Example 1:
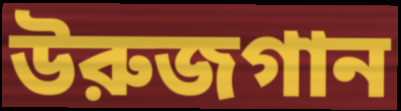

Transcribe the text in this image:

উরুজগান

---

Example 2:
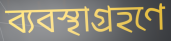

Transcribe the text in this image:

ব্যবস্থাগ্রহণে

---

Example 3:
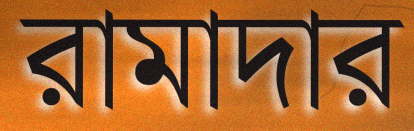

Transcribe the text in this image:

রামাদার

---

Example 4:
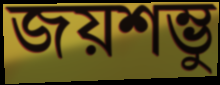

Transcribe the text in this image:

জয়শম্ভু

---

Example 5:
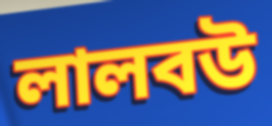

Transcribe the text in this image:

লালবউ